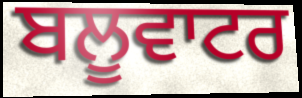
ਬਲੂਵਾਟਰ